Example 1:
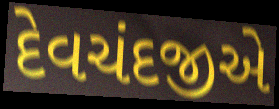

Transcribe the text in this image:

દેવચંદજીએ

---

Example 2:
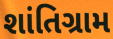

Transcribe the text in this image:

શાંતિગ્રામ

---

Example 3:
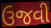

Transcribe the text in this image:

ઉજવી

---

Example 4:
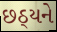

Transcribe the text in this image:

છઠ્યને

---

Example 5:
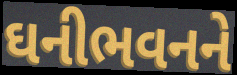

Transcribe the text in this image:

ઘનીભવનને